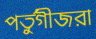
পর্তুগীজরা